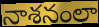
నాశనంలా